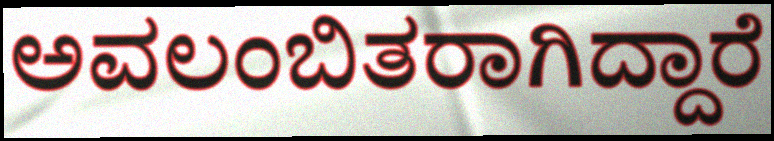
ಅವಲಂಬಿತರಾಗಿದ್ದಾರೆ